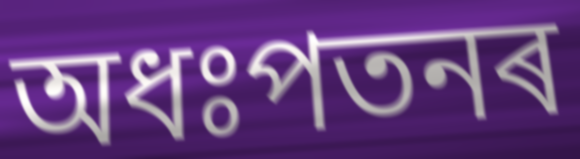
অধঃপতনৰ